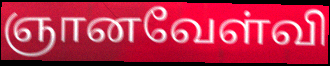
ஞானவேள்வி